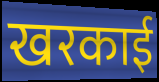
खरकाई